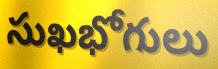
సుఖభోగులు